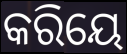
କରିୟେ